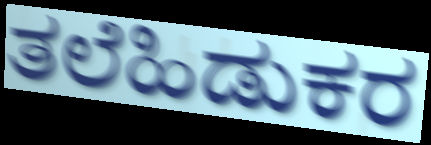
ತಲೆಹಿಡುಕರ